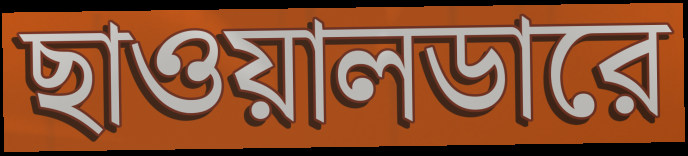
ছাওয়ালডারে